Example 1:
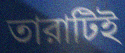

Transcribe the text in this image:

তারাটিই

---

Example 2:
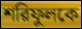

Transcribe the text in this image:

শরিফুলকে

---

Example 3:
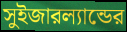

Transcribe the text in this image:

সুইজারল্যান্ডের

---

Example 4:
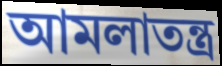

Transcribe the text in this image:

আমলাতন্ত্র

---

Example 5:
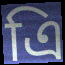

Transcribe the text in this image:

এি